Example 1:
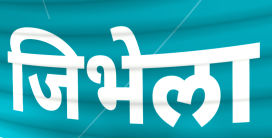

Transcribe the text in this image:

जिभेला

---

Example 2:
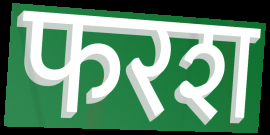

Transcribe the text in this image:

फरश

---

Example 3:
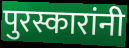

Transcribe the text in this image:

पुरस्कारांनी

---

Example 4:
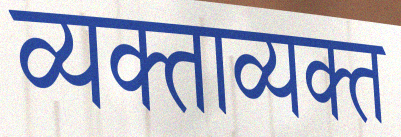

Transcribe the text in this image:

व्यक्ताव्यक्त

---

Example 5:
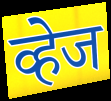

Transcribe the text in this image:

व्हेज